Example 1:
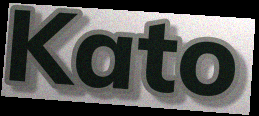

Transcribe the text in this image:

Kato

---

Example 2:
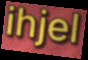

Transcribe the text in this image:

ihjel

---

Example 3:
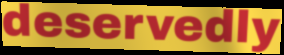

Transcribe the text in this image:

deservedly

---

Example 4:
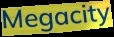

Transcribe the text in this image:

Megacity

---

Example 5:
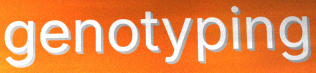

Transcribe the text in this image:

genotyping